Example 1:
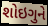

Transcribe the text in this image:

શોઇગુને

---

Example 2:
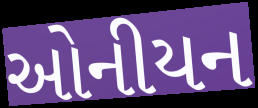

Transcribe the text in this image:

ઓનીયન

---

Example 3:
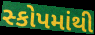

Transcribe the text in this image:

સ્કોપમાંથી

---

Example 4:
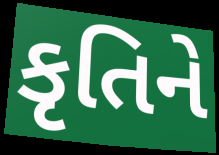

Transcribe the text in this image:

કૃતિને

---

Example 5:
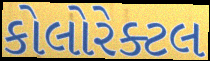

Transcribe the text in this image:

કોલોરેક્ટલ